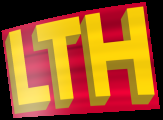
LTH